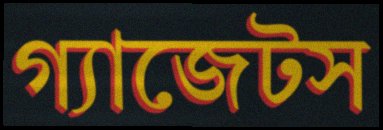
গ্যাজেটস